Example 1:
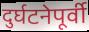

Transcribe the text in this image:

दुर्घटनेपूर्वी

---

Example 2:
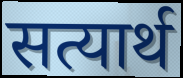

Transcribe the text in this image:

सत्यार्थ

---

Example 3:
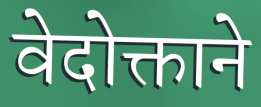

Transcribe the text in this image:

वेदोक्ताने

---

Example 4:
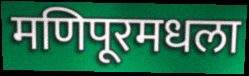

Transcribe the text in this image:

मणिपूरमधला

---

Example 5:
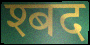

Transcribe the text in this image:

श्बद